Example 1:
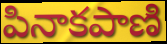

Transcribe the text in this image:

పినాకపాణి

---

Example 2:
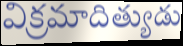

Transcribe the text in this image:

విక్రమాదిత్యుడు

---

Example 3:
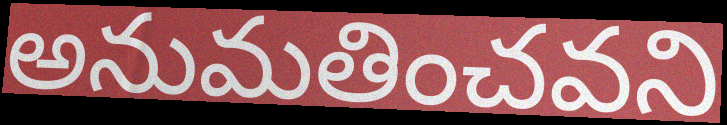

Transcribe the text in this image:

అనుమతించవని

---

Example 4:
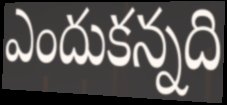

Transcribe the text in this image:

ఎందుకన్నది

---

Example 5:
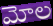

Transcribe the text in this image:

మోల